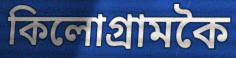
কিলোগ্ৰামকৈ